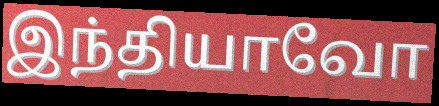
இந்தியாவோ